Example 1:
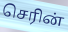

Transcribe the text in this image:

செரின்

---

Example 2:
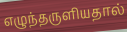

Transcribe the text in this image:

எழுந்தருளியதால்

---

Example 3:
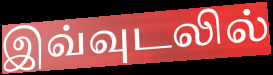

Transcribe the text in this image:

இவ்வுடலில்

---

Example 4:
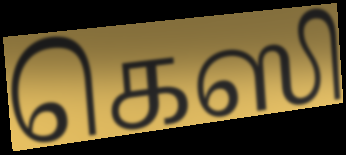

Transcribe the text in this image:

கெஸி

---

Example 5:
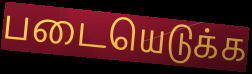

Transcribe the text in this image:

படையெடுக்க